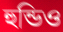
হুন্ডিও